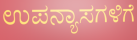
ಉಪನ್ಯಾಸಗಳಿಗೆ